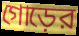
গোড়ের